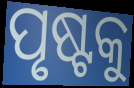
ପୃଷ୍ଟକୁ